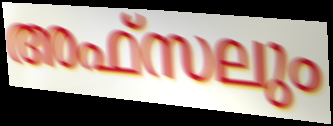
അഫ്സലും